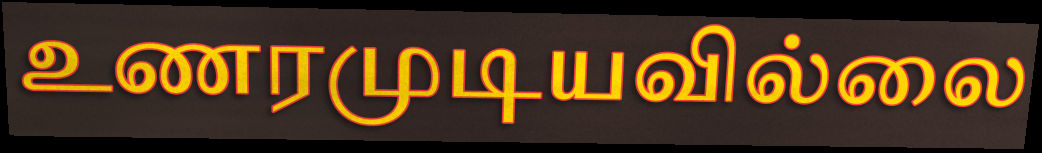
உணரமுடியவில்லை